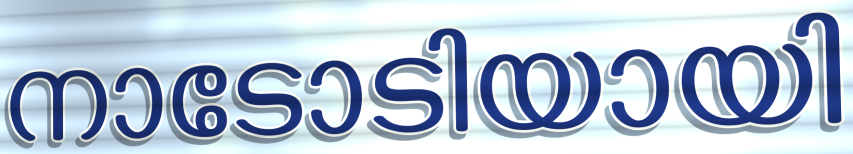
നാടോടിയായി